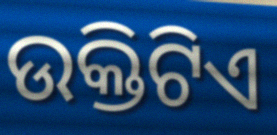
ଉକ୍ତିଟିଏ